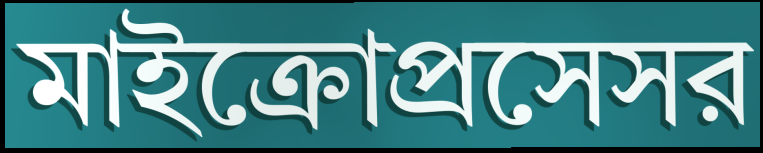
মাইক্রোপ্রসেসর